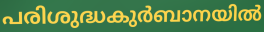
പരിശുദ്ധകുർബാനയിൽ